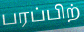
பரப்பிற்